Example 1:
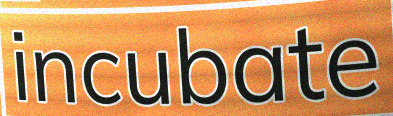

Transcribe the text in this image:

incubate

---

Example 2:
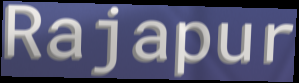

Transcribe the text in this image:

Rajapur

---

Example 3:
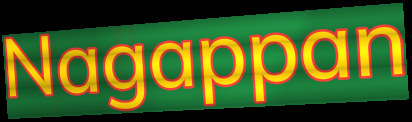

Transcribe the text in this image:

Nagappan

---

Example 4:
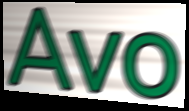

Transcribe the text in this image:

Avo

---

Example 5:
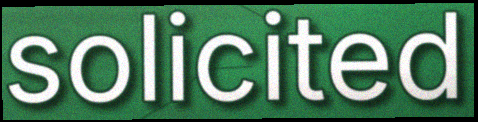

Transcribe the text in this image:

solicited